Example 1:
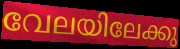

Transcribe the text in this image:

വേലയിലേക്കു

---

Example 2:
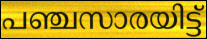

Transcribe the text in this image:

പഞ്ചസാരയിട്ട്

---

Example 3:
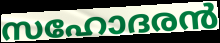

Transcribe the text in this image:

സഹോദരൻ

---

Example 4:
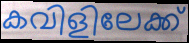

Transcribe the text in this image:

കവിളിലേക്ക്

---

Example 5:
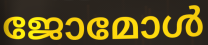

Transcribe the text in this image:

ജോമോൾ